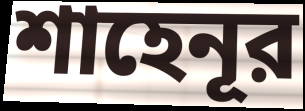
শাহেনূর